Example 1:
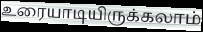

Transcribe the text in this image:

உரையாடியிருக்கலாம்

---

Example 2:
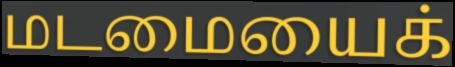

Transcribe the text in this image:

மடமையைக்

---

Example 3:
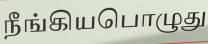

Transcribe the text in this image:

நீங்கியபொழுது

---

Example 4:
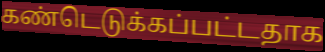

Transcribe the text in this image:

கண்டெடுக்கப்பட்டதாக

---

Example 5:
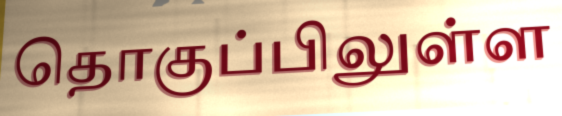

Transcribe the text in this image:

தொகுப்பிலுள்ள